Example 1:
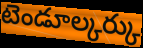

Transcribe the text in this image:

టెండూల్కర్కు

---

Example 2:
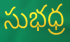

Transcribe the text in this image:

సుభధ్ర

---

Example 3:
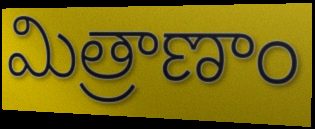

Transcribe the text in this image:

మిత్రాణాం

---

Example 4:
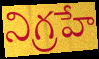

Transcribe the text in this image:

నిగ్రహే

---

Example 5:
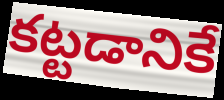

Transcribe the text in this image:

కట్టడానికే